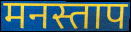
मनस्ताप